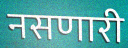
नसणारी